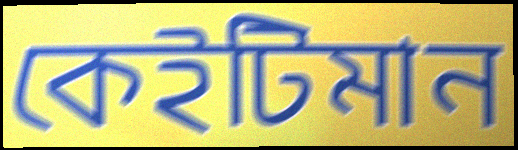
কেইটিমান